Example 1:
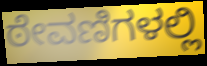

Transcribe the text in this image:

ಠೇವಣಿಗಳಲ್ಲಿ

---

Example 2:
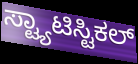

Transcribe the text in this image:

ಸ್ಟ್ಯಾಟಿಸ್ಟಿಕಲ್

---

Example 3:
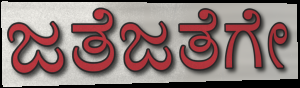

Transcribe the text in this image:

ಜತೆಜತೆಗೇ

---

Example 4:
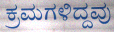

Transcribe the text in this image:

ಕ್ರಮಗಳಿದ್ದವು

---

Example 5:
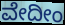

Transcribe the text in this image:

ವೇದೀಂ